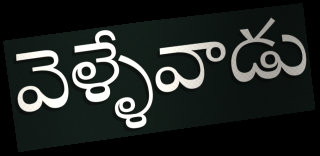
వెళ్ళేవాడు